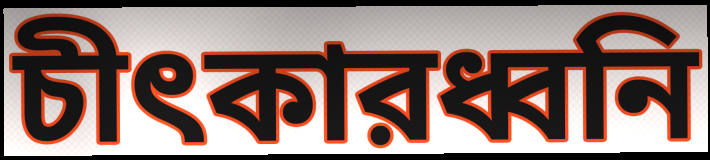
চীৎকারধ্বনি